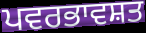
ਪਵਰਭਾਵਸ਼ਤ